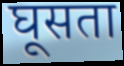
घूसता